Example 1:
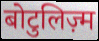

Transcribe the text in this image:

बोटुलिज़्म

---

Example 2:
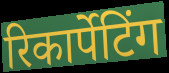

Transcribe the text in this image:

रिकार्पेटिंग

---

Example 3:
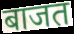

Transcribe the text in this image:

बाजत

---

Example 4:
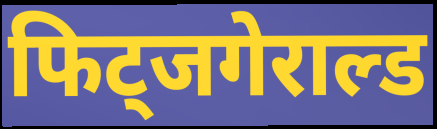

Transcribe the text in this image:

फिट्जगेराल्ड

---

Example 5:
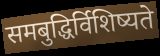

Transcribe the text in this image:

समबुद्धिर्विशिष्यते